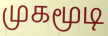
முகமூடி